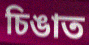
চিঙাত